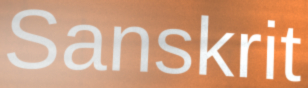
Sanskrit